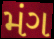
મંગ